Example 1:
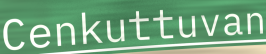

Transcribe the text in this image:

Cenkuttuvan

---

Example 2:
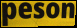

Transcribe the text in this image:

peson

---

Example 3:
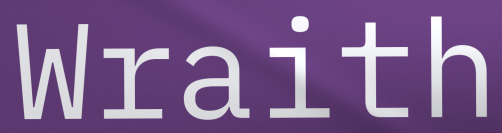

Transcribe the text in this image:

Wraith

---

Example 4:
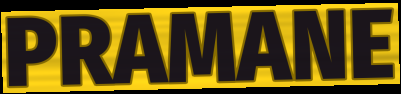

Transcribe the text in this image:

PRAMANE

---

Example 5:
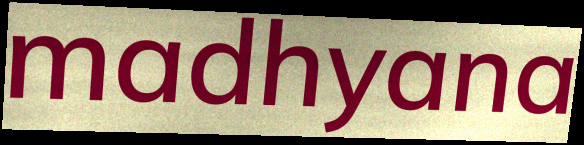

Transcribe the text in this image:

madhyana